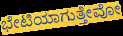
ಭೇಟಿಯಾಗುತ್ತೇವೋ